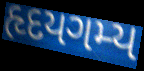
હૃદયગમ્ય